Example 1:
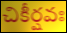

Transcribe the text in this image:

చికీర్షవః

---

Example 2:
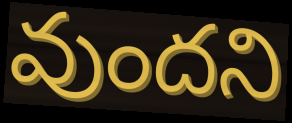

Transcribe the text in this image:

వుందని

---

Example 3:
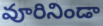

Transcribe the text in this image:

వూరినిండా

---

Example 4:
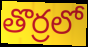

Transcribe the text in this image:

తొర్రలో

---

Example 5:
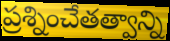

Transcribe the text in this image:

ప్రశ్నించేతత్వాన్ని